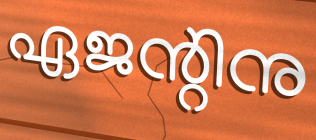
ഏജന്റിനു